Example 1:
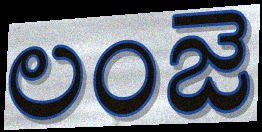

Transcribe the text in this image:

లంజె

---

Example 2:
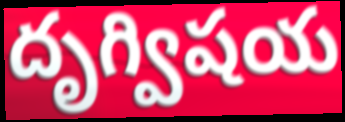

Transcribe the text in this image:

దృగ్విషయ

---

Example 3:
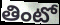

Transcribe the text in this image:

తింటో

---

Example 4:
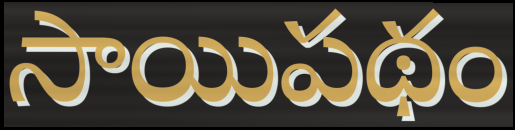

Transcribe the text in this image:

సాయిపథం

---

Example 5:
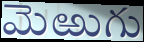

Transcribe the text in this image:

మెఱుగు